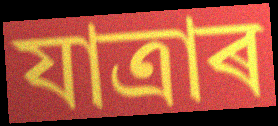
যাত্ৰাৰ